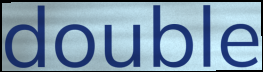
double